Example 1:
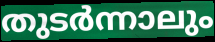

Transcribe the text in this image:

തുടർന്നാലും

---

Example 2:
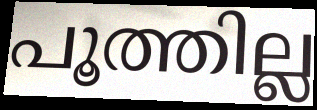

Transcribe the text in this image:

പൂത്തില്ല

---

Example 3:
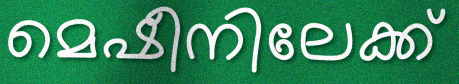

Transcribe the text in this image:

മെഷീനിലേക്ക്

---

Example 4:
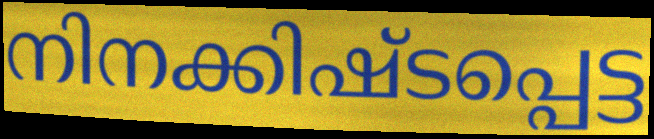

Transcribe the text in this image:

നിനക്കിഷ്ടപ്പെട്ട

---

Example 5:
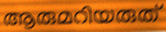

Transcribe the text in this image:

ആരുമറിയരുത്